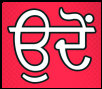
ਉਦੋਂ